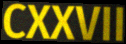
CXXVII